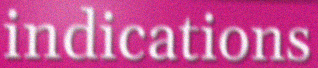
indications